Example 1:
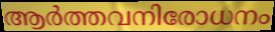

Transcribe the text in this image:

ആർത്തവനിരോധനം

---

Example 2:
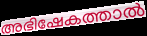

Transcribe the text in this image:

അഭിഷേകത്താൽ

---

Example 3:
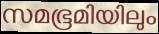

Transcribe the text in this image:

സമഭൂമിയിലും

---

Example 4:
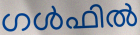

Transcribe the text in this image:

ഗൾഫിൽ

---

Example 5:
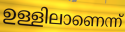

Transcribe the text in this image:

ഉള്ളിലാണെന്ന്